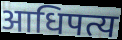
आधिपत्य